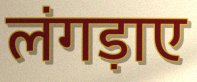
लंगड़ाए